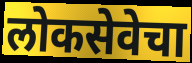
लोकसेवेचा